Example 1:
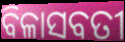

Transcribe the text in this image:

ବିଳାସବତୀ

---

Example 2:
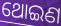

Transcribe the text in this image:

ଥୋଇଣ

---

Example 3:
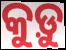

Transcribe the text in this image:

କୁଡ଼ୁ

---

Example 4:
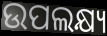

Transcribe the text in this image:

ଉପଲକ୍ଷ୍ୟ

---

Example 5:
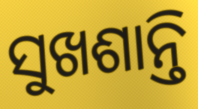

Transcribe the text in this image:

ସୁଖଶାନ୍ତି